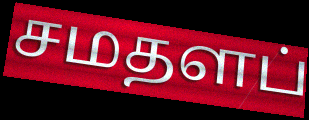
சமதளப்